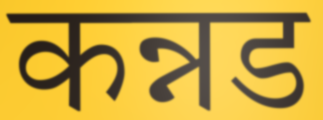
कन्नड